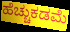
ಹೆಚ್ಚುಕಡಮೆ